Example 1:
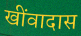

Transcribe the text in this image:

खींवादास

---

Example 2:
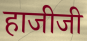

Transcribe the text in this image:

हाजीजी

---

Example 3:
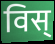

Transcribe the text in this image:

विस्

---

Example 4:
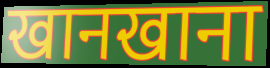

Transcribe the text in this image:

खानखाना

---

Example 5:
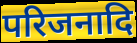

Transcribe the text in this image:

परिजनादि